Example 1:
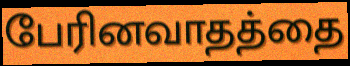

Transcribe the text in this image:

பேரினவாதத்தை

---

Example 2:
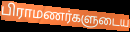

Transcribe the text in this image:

பிராமணர்களுடைய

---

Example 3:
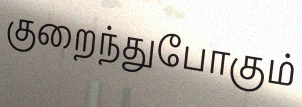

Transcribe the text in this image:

குறைந்துபோகும்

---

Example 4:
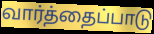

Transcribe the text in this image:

வார்த்தைப்பாடு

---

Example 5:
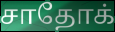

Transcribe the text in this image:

சாதோக்